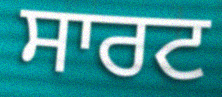
ਸਾਰਟ